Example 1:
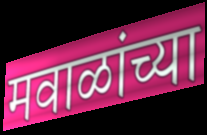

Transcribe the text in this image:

मवाळांच्या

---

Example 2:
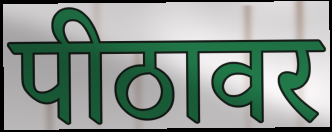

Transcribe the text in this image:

पीठावर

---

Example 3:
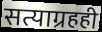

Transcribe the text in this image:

सत्याग्रहही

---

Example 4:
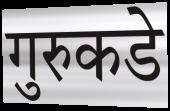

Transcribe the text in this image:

गुरुकडे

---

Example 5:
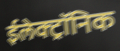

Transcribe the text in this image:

ईलेक्ट्रॉनिक